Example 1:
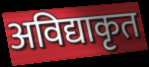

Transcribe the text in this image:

अविद्याकृत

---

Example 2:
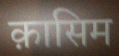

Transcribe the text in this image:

क़ासिम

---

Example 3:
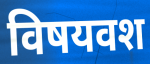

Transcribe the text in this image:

विषयवश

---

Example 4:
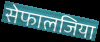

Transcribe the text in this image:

सेफालजिया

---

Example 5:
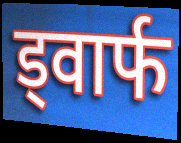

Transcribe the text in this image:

ड्वार्फ